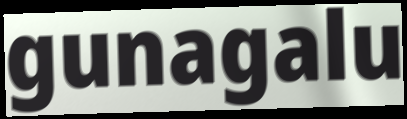
gunagalu